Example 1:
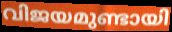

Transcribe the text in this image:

വിജയമുണ്ടായി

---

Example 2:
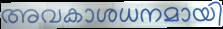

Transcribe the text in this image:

അവകാശധനമായി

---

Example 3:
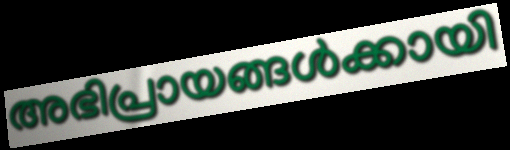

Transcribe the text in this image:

അഭിപ്രായങ്ങൾക്കായി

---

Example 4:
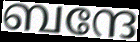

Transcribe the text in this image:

ബന്ദേ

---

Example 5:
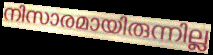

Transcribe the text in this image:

നിസാരമായിരുന്നില്ല